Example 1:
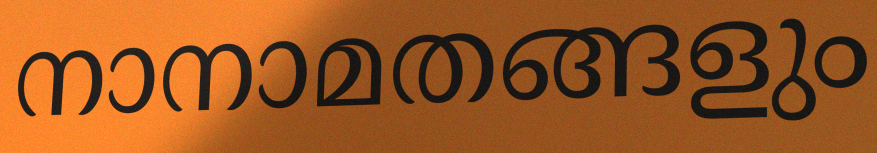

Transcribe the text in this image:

നാനാമതങ്ങളും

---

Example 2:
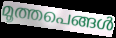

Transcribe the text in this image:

മൂത്തപെങ്ങൾ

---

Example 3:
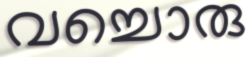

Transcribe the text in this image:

വച്ചൊരു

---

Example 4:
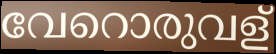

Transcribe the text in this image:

വേറൊരുവള്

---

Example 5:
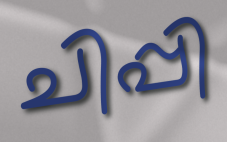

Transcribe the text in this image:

ചിപ്പി